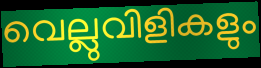
വെല്ലുവിളികളും